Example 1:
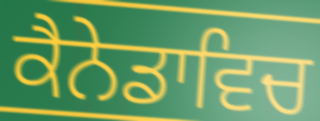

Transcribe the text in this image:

ਕੈਨੇਡਾਵਿਚ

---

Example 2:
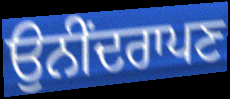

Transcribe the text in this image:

ਉਨੀਂਦਰਾਪਣ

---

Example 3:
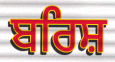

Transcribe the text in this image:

ਬਰਿਸ਼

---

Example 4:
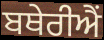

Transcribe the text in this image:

ਬਥੇਰੀਐਂ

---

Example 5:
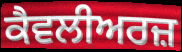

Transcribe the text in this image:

ਕੈਵਲੀਅਰਜ਼